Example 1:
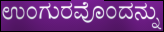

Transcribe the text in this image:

ಉಂಗುರವೊಂದನ್ನು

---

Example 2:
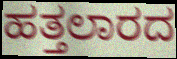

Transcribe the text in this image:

ಹತ್ತಲಾರದ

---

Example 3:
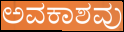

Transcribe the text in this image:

ಅವಕಾಶವು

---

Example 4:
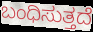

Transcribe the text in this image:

ಬಂಧಿಸುತ್ತದೆ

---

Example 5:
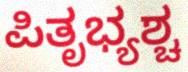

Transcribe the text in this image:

ಪಿತೃಭ್ಯಶ್ಚ